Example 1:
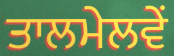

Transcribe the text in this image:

ਤਾਲਮੇਲਵੇਂ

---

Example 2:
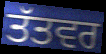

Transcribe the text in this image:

ਤੱਤਵਰ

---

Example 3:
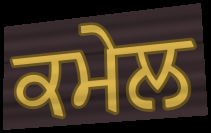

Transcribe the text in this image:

ਕਮੇਲ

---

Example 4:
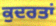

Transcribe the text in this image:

ਕੁਦਰਤਾਂ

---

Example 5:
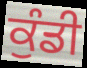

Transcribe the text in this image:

ਕੁੰਡੀ